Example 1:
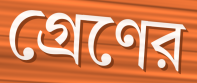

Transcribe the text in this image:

গ্রেণের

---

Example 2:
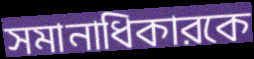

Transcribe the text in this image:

সমানাধিকারকে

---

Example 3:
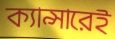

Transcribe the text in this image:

ক্যান্সারেই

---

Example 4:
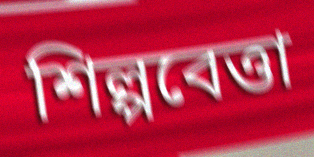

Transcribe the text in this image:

শিল্পবেত্তা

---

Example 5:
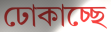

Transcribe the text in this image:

ঢোকাচ্ছে